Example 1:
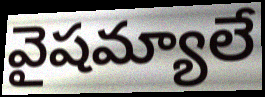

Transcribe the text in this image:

వైషమ్యాలే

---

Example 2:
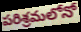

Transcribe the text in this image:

పరిశ్రమలోనో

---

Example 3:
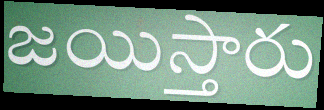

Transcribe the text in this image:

జయిస్తారు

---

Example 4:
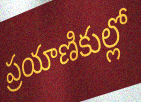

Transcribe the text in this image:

ప్రయాణికుల్లో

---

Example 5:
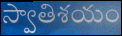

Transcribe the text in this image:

స్వాతిశయం